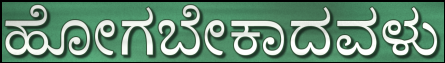
ಹೋಗಬೇಕಾದವಳು